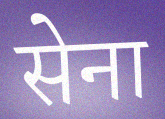
सेना